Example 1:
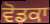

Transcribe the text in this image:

ਵੋਡਕਾ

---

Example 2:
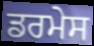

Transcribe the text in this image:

ਡਰਮੇਸ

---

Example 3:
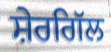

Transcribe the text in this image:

ਸ਼ੇਰਗਿੱਲ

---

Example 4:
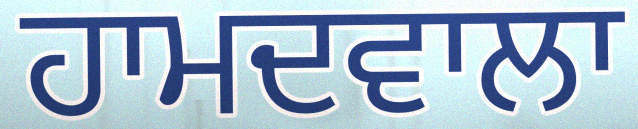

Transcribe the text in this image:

ਹਾਮਦਵਾਲਾ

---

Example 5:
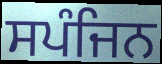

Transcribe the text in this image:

ਸਪੰਜਿਨ